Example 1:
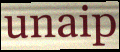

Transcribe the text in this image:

unaip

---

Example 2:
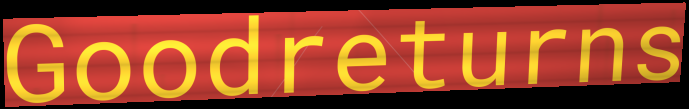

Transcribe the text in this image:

Goodreturns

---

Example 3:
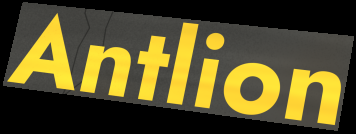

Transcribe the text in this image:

Antlion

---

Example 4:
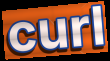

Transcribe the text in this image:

curl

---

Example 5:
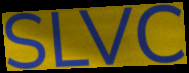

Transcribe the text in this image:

SLVC